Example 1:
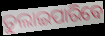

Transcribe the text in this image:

ତୁଲାଇପାରିବେ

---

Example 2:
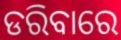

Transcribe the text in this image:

ଡରିବାରେ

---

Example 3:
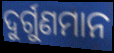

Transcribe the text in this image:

ଦୁର୍ଗୁଣମାନ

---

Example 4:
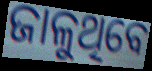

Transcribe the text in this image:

ଜାଳୁଥିବେ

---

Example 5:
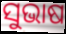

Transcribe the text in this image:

ସୁଭାଷ